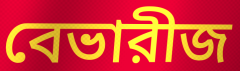
বেভারীজ